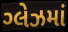
ગ્લેઝમાં